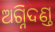
ଅଗ୍ନିଦଣ୍ଡ